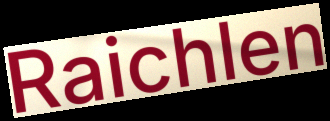
Raichlen